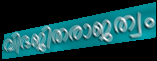
വിഭജിതരാജത്വം